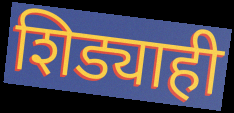
शिड्याही